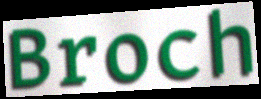
Broch